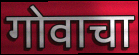
गोवाचा